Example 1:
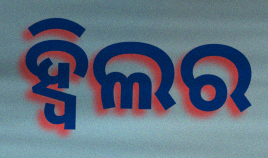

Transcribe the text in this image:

ହ୍ୱିଲର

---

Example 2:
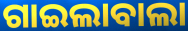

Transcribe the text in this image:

ଗାଇଲାବାଲା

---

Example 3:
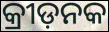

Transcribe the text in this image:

କ୍ରୀଡ଼ନକ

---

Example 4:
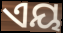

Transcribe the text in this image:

ଏୟ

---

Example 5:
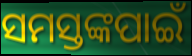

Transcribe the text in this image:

ସମସ୍ତଙ୍କପାଇଁ